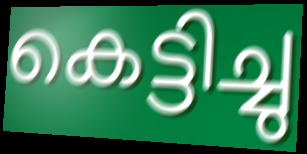
കെട്ടിച്ചു